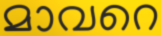
മാവറെ